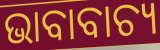
ଭାବାବାଚ୍ୟ